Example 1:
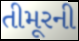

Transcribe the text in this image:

તીમૂરની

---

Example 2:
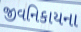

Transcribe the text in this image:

જીવનિકાયના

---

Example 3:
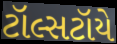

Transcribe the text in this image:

ટૉલ્સટૉયે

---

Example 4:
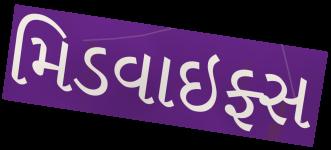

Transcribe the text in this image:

મિડવાઇફ્સ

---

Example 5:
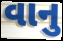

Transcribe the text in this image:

વાનુ